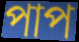
পাপ